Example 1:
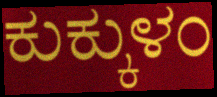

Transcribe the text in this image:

ಕುಕ್ಕುಳಂ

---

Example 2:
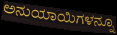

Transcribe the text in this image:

ಅನುಯಾಯಿಗಳನ್ನೂ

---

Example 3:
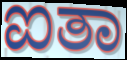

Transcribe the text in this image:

ಐತಾ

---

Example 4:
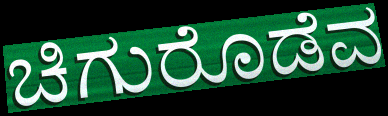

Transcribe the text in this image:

ಚಿಗುರೊಡೆವ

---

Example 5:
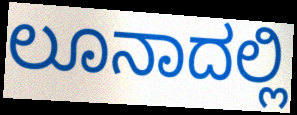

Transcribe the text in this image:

ಲೂನಾದಲ್ಲಿ